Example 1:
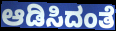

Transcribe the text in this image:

ಆಡಿಸಿದಂತೆ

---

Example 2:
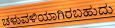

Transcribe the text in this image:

ಚಳುವಳಿಯಾಗಿರಬಹುದು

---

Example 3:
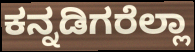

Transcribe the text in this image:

ಕನ್ನಡಿಗರೆಲ್ಲಾ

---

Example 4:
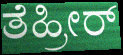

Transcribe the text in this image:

ತೆಹ್ರೀರ್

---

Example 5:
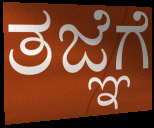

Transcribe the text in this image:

ತಜ್ಞೆಗೆ